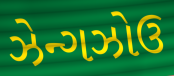
ઝેન્ગઝોઉ